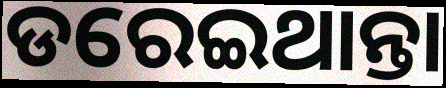
ଡରେଇଥାନ୍ତା